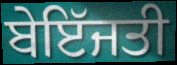
ਬੇਇੱਜਤੀ